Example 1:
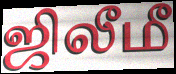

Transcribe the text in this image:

ஜிலீமீ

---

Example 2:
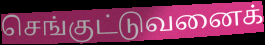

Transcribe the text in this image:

செங்குட்டுவனைக்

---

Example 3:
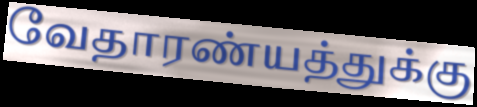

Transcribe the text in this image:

வேதாரண்யத்துக்கு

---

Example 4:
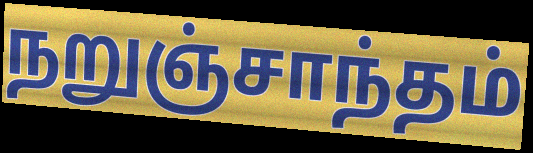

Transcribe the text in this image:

நறுஞ்சாந்தம்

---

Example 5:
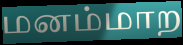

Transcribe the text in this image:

மனம்மாற